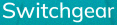
Switchgear